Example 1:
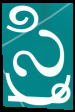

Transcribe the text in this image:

స్ర్తి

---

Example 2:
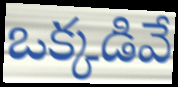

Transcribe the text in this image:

ఒక్కడివే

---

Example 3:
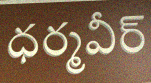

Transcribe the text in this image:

ధర్మవీర్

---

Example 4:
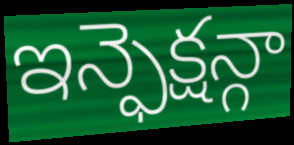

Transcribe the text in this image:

ఇన్ఫెక్షన్గా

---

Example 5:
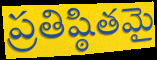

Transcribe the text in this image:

ప్రతిష్ఠితమై